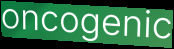
oncogenic